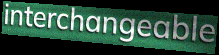
interchangeable